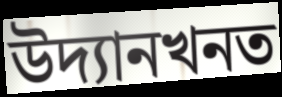
উদ্যানখনত